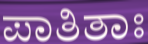
ಪಾತಿತಾಃ